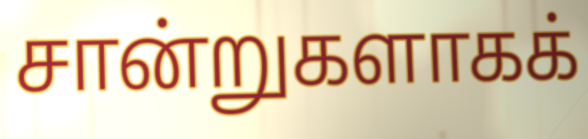
சான்றுகளாகக்